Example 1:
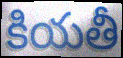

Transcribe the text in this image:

కియతీ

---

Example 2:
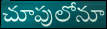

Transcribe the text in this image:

చూపులోనూ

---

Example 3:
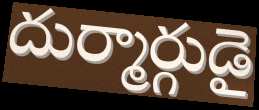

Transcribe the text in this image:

దుర్మార్గుడై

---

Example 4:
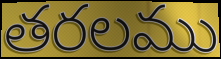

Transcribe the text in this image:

తరలము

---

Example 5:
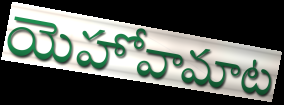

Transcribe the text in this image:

యెహోవామాట